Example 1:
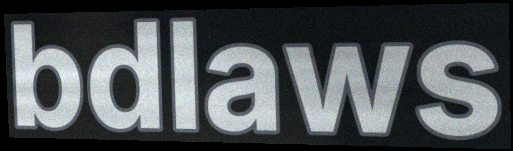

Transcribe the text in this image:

bdlaws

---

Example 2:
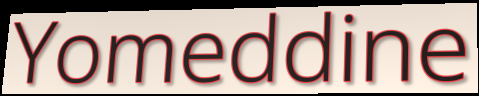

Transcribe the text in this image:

Yomeddine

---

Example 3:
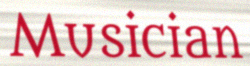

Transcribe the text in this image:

Musician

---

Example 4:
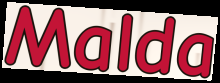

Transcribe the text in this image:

Malda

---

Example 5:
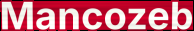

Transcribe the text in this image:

Mancozeb